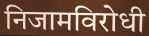
निजामविरोधी